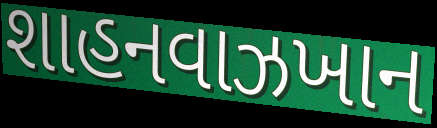
શાહનવાઝખાન